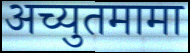
अच्युतमामा